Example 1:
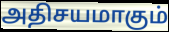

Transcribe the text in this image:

அதிசயமாகும்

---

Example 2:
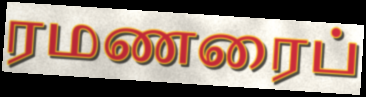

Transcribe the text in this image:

ரமணரைப்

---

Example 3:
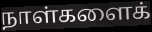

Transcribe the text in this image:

நாள்களைக்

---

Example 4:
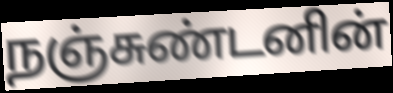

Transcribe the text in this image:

நஞ்சுண்டனின்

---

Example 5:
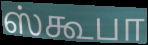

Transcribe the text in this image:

ஸ்கூபா